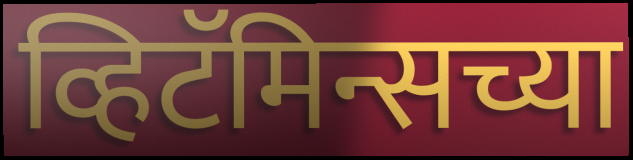
व्हिटॅमिन्सच्या